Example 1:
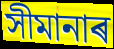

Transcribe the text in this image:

সীমানাৰ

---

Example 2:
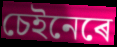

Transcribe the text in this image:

চেইনেৰে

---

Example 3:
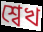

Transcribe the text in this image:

শ্বেখ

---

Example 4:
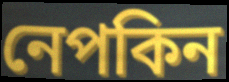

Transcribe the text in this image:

নেপকিন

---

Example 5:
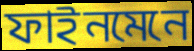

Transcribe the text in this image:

ফাইনমেনে